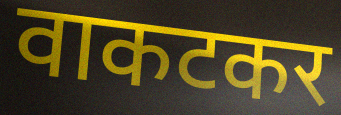
वाकटकर